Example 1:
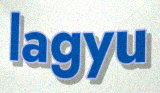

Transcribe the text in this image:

lagyu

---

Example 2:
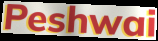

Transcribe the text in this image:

Peshwai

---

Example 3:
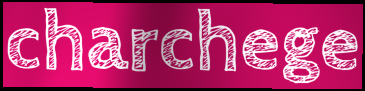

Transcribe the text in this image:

charchege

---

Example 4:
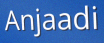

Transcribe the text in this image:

Anjaadi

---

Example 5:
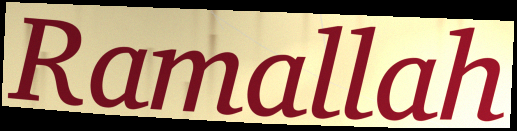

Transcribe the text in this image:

Ramallah